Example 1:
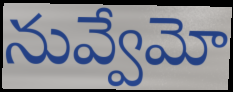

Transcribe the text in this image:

నువ్వేమో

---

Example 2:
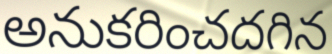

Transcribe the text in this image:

అనుకరించదగిన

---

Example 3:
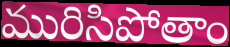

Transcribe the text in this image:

మురిసిపోతాం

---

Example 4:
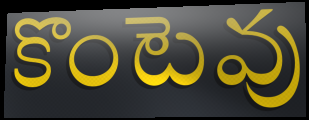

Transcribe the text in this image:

కొంటెవు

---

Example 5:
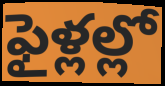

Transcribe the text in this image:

ఫైళ్లల్లో